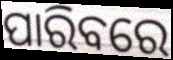
ପାରିବରେ